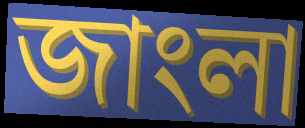
জাংলা